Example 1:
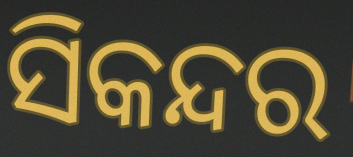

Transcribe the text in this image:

ସିକନ୍ଦର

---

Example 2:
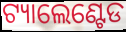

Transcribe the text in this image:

ଟ୍ୟାଲେଣ୍ଟେଡ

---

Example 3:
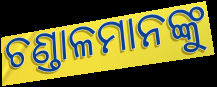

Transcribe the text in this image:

ଚଣ୍ଡାଳମାନଙ୍କୁ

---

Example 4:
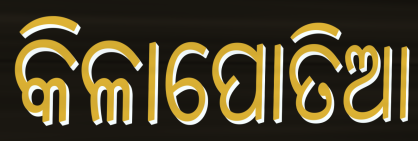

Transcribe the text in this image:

କିଳାପୋତିଆ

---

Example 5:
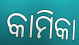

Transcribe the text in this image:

କାମିକା